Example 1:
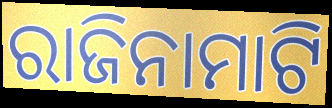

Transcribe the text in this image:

ରାଜିନାମାଟି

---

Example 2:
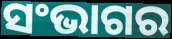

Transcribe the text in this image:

ସଂଭାଗର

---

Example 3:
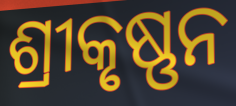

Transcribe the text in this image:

ଶ୍ରୀକୃଷ୍ଣନ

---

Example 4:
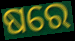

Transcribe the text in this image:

ଷରେ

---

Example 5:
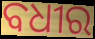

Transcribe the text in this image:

ବଧୀର